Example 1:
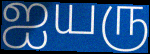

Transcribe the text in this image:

ஐயரு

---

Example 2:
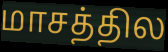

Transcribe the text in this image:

மாசத்தில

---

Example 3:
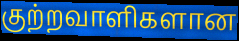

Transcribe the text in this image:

குற்றவாளிகளான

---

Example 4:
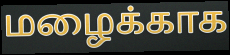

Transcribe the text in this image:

மழைக்காக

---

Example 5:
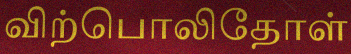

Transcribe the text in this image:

விற்பொலிதோள்